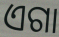
ଏଗା